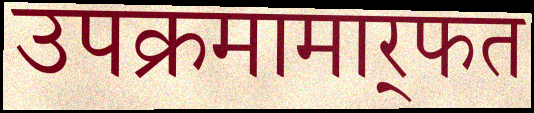
उपक्रमामार्फत